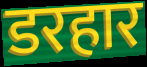
डरहार